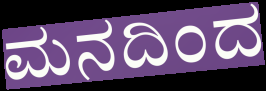
ಮನದಿಂದ